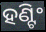
ହଣ୍ଟିଂ